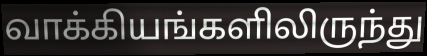
வாக்கியங்களிலிருந்து